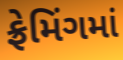
ફ્રેમિંગમાં